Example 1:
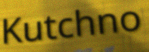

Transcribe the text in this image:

Kutchno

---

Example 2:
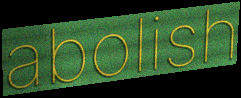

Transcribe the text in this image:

abolish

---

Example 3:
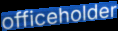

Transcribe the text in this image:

officeholder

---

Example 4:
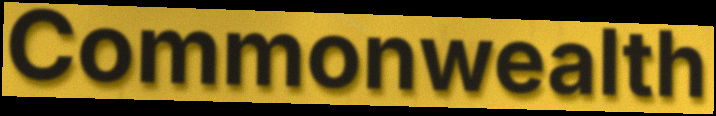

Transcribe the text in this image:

Commonwealth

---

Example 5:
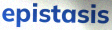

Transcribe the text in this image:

epistasis